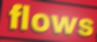
flows